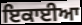
ਇਕਾਈਆ